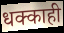
धक्काही